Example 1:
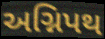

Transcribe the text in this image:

અગ્નિપથ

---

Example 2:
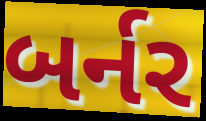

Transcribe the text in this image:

બર્નર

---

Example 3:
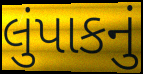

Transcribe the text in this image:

લુંપાકનું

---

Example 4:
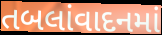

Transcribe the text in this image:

તબલાંવાદનમાં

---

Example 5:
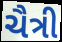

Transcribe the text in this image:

ચૈત્રી